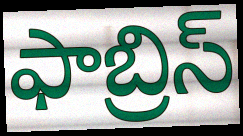
ఫాబ్రిస్